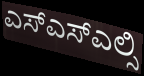
ಎಸ್ಎಸ್ಎಲ್ಸಿ